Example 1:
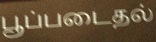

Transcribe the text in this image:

பூப்படைதல்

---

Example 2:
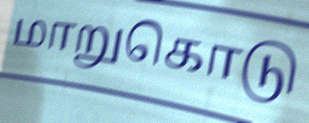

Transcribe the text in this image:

மாறுகொடு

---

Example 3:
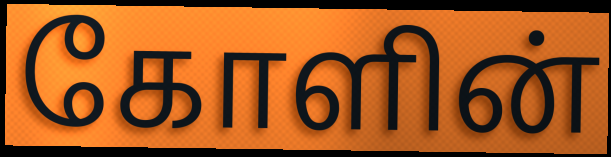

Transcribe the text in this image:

கோளின்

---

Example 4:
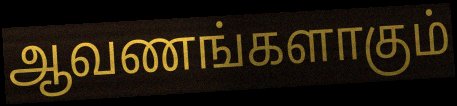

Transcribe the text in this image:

ஆவணங்களாகும்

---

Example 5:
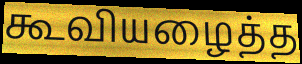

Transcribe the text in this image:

கூவியழைத்த